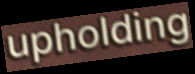
upholding